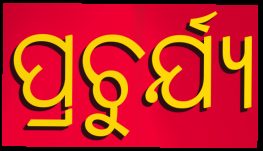
ପ୍ରଚୁର୍ଯ୍ୟ